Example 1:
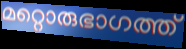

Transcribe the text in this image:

മറ്റൊരുഭാഗത്ത്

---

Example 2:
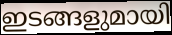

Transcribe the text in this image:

ഇടങ്ങളുമായി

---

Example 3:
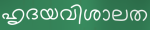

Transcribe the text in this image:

ഹൃദയവിശാലത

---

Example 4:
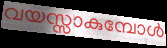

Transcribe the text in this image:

വയസ്സാകുമ്പോൾ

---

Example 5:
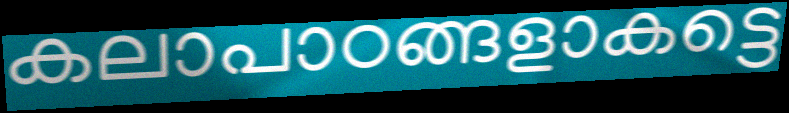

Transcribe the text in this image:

കലാപാഠങ്ങളാകട്ടെ